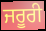
ਜਰੂਰੀ